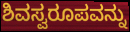
ಶಿವಸ್ವರೂಪವನ್ನು